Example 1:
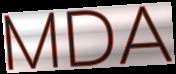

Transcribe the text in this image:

MDA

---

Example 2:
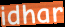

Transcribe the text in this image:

idhar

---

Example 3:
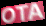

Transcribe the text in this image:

OTA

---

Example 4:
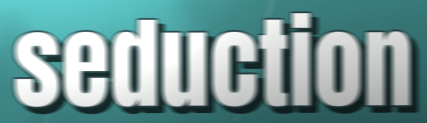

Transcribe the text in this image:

seduction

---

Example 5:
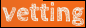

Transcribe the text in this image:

vetting